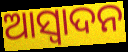
ଆସ୍ୱାଦନ